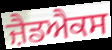
ਜ਼ੈਡਐਕਸ